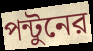
পন্টুনের